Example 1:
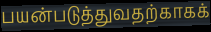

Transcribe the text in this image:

பயன்படுத்துவதற்காகக்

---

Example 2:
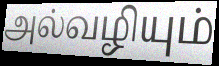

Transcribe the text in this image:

அல்வழியும்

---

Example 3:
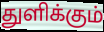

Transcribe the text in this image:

துளிக்கும்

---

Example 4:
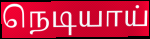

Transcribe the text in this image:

நெடியாய்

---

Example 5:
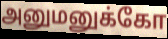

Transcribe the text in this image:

அனுமனுக்கோ